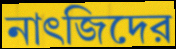
নাৎজিদের